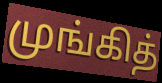
முங்கித்